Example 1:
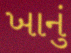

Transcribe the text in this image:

ખાનું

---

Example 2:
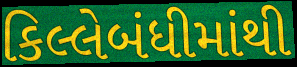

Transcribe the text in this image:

કિલ્લેબંધીમાંથી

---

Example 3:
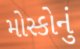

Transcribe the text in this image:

મોસ્કોનું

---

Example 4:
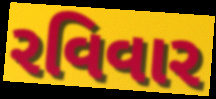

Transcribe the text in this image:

રવિવાર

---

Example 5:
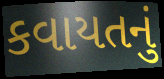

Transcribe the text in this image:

કવાયતનું